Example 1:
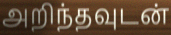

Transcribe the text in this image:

அறிந்தவுடன்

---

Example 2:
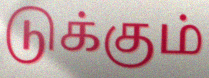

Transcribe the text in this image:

டுக்கும்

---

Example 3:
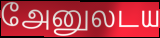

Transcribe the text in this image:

அேனுலடய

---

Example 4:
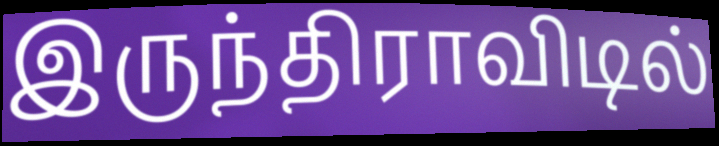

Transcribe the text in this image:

இருந்திராவிடில்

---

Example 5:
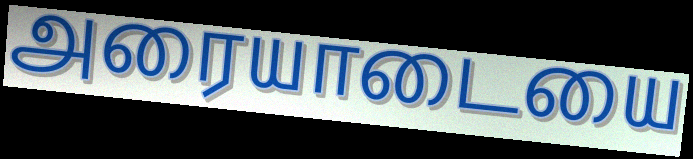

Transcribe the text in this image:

அரையாடையை